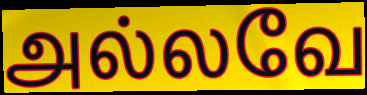
அல்லவே